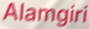
Alamgiri